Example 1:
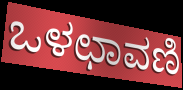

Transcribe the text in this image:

ಒಳಛಾವಣಿ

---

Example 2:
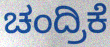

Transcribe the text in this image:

ಚಂದ್ರಿಕೆ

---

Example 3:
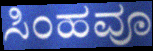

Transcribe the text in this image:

ಸಿಂಹವೂ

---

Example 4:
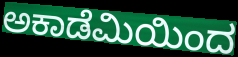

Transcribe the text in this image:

ಅಕಾಡೆಮಿಯಿಂದ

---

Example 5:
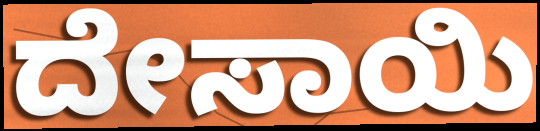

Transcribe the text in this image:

ದೇಸಾಯಿ